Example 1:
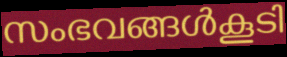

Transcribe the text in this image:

സംഭവങ്ങൾകൂടി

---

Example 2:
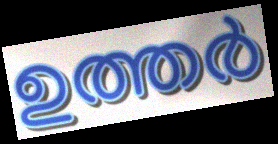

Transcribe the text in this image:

ഉത്തർ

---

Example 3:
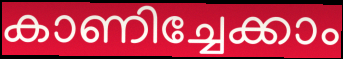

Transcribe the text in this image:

കാണിച്ചേക്കാം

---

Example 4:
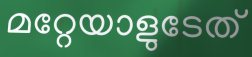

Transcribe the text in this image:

മറ്റേയാളുടേത്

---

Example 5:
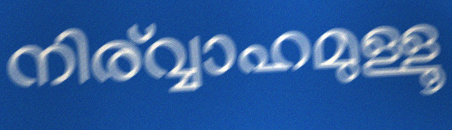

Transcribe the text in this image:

നിര്വ്വാഹമുള്ളൂ